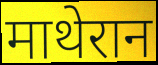
माथेरान